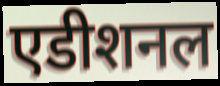
एडीशनल